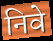
निवे